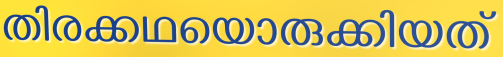
തിരക്കഥയൊരുക്കിയത്